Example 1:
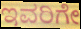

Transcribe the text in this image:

ಇವರಿಗೇ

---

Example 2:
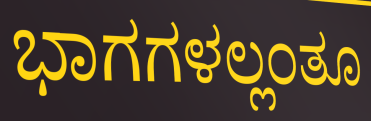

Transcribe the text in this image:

ಭಾಗಗಳಲ್ಲಂತೂ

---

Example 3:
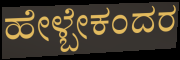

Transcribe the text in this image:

ಹೇಳ್ಬೇಕಂದರ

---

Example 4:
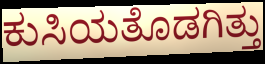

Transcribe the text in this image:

ಕುಸಿಯತೊಡಗಿತ್ತು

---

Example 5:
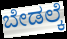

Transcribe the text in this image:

ಬೇಡಲ್ಕೆ